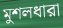
মুশলধারা